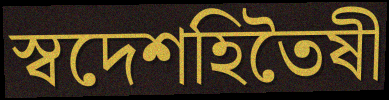
স্বদেশহিতৈষী